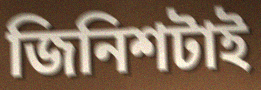
জিনিশটাই